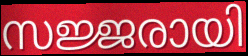
സജ്ജരായി